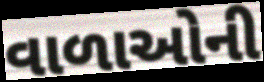
વાળાઓની